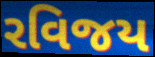
રવિજય